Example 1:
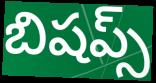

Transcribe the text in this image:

బిషప్స్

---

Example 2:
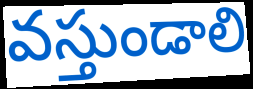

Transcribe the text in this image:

వస్తుండాలి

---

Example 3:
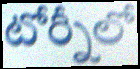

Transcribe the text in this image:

టోర్నీలో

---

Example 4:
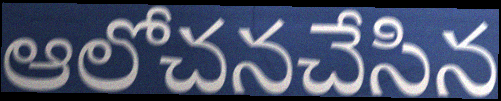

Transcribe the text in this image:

ఆలోచనచేసిన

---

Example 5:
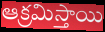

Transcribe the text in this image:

ఆక్రమిస్తాయి